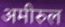
अमीरुल